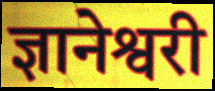
ज्ञानेश्वरी